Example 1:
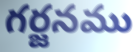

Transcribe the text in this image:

గర్జనము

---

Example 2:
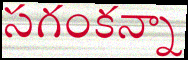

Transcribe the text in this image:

సగంకన్నా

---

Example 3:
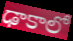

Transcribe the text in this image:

ఢాకాలో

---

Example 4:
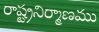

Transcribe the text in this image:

రాష్ట్రనిర్మాణము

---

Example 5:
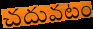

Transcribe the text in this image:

చదువటం